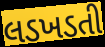
લડખડતી